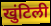
खुंटिली